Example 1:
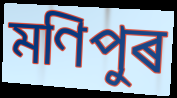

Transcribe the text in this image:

মণিপুৰ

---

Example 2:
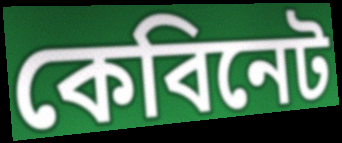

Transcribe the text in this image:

কেবিনেট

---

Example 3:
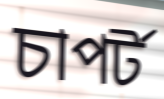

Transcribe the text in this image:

চাপৰ্ট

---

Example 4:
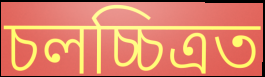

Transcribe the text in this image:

চলচ্চিত্ৰত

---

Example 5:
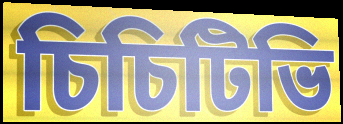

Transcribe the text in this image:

চিচিটিভি